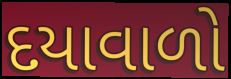
દયાવાળો